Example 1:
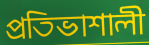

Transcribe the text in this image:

প্ৰতিভাশালী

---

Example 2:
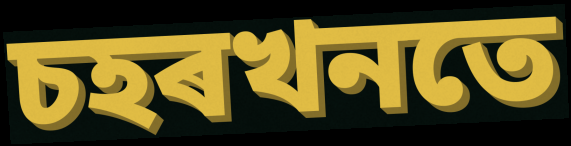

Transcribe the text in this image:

চহৰখনতে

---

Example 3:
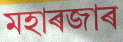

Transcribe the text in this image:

মহাৰজাৰ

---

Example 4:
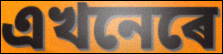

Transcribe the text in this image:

এখনেৰে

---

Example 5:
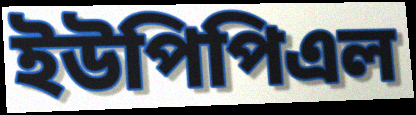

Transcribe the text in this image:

ইউপিপিএল